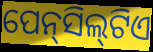
ପେନ୍‍ସିଲ୍‍ଟିଏ